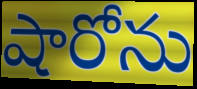
షారోను